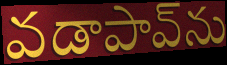
వడాపావ్‌ను